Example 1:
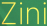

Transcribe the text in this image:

Zini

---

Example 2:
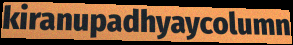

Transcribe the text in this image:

kiranupadhyaycolumn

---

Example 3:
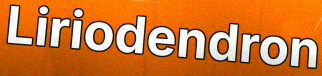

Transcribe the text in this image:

Liriodendron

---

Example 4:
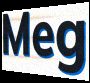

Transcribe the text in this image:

Meg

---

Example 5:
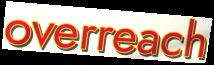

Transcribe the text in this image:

overreach